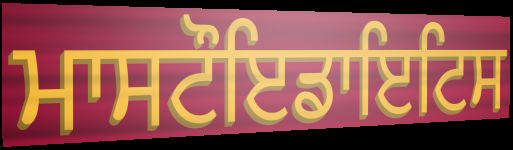
ਮਾਸਟੌਇਡਾਇਟਿਸ